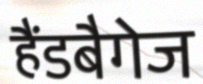
हैंडबैगेज